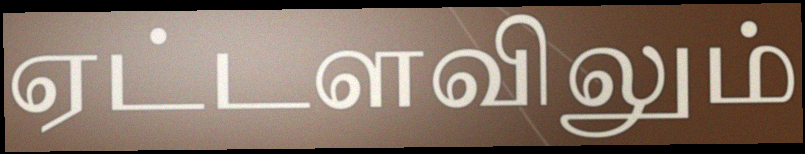
ஏட்டளவிலும்